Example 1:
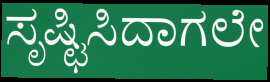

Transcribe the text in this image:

ಸೃಷ್ಟಿಸಿದಾಗಲೇ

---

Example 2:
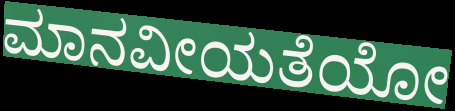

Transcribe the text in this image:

ಮಾನವೀಯತೆಯೋ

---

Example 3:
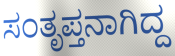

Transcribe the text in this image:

ಸಂತೃಪ್ತನಾಗಿದ್ದ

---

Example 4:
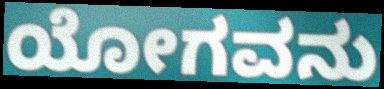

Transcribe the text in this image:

ಯೋಗವನು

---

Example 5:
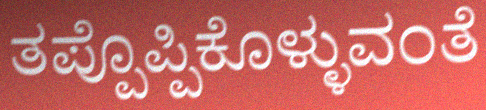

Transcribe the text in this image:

ತಪ್ಪೊಪ್ಪಿಕೊಳ್ಳುವಂತೆ